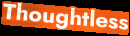
Thoughtless